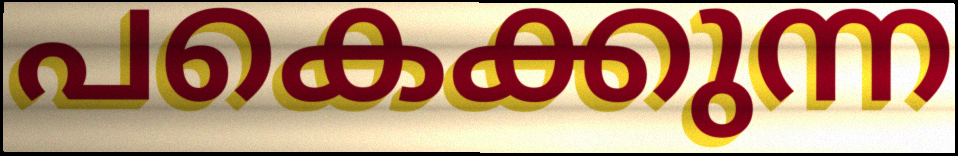
പകെക്കുന്ന